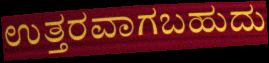
ಉತ್ತರವಾಗಬಹುದು